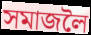
সমাজলৈ